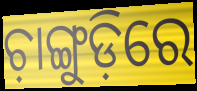
ଚ଼ାଙ୍ଗୁଡ଼ିରେ